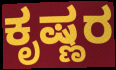
ಕೃಷ್ಣರ